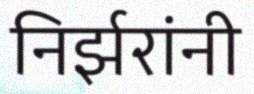
निर्झरांनी